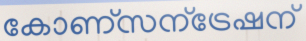
കോണ്സന്ട്രേഷന്